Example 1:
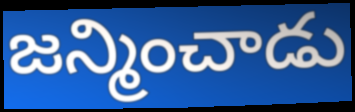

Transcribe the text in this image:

జన్మించాడు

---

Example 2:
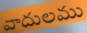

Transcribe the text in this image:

వాదులము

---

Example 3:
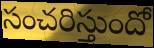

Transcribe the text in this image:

సంచరిస్తుందో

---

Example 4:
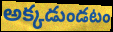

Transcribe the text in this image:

అక్కడుండటం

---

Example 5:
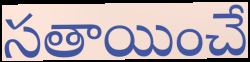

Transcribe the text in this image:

సతాయించే